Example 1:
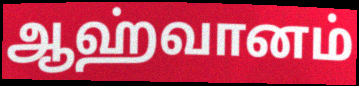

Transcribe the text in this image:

ஆஹ்வானம்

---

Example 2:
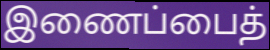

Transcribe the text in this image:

இணைப்பைத்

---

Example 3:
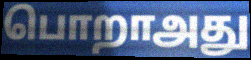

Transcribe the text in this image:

பொறாஅது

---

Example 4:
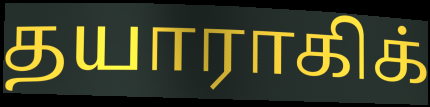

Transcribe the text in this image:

தயாராகிக்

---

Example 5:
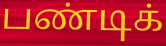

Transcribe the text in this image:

பண்டிக்